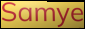
Samye